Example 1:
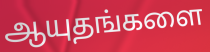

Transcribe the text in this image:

ஆயுதங்களை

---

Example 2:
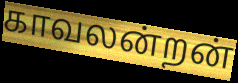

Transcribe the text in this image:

காவலன்றன்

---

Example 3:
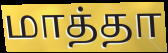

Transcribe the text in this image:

மாத்தா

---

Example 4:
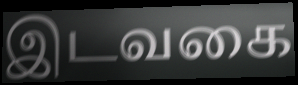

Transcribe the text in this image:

இடவகை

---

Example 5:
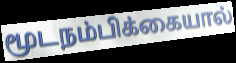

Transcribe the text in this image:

மூடநம்பிக்கையால்